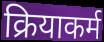
क्रियाकर्म